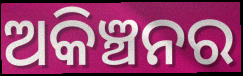
ଅକିଞ୍ଚନର